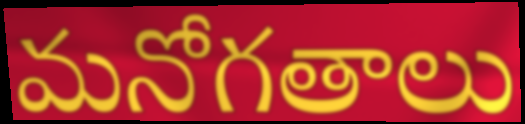
మనోగతాలు